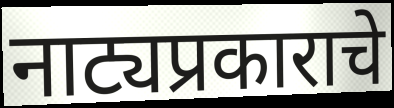
नाट्यप्रकाराचे